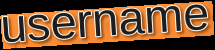
username